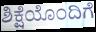
ಶಿಕ್ಷೆಯೊಂದಿಗೆ